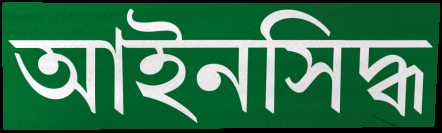
আইনসিদ্ধ